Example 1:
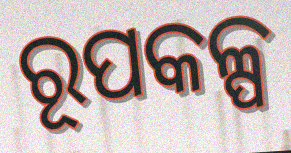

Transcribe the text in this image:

ରୂପକଳ୍ପ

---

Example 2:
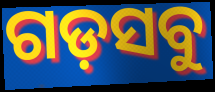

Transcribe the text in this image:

ଗଡ଼ସବୁ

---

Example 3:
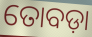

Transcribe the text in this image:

ତୋବଡ଼ା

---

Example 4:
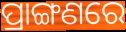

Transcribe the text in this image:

ପ୍ରାଙ୍ଗଣରେ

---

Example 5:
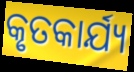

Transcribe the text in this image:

କୃତକାର୍ଯ୍ୟ